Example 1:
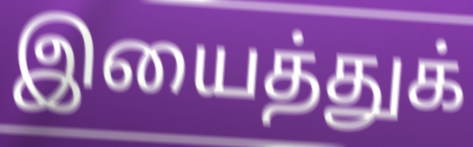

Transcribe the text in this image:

இயைத்துக்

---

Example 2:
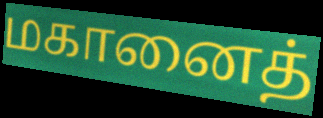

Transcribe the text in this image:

மகானைத்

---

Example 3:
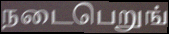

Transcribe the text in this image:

நடைபெறுங்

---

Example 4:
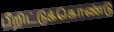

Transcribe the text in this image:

பீறிட்டுக்கொண்டு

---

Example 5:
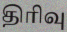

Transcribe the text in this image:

திரிவு